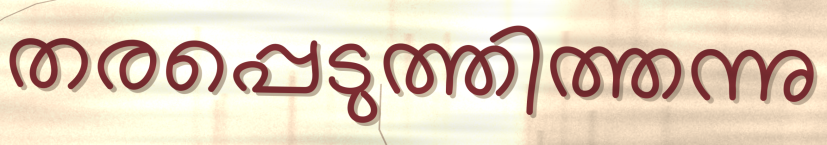
തരപ്പെടുത്തിത്തന്നു